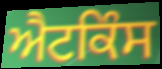
ਐਟਕਿੰਸ